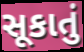
સૂકાતું